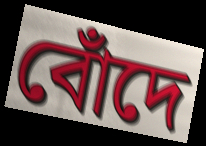
বোঁদে